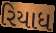
રિયાધ